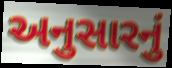
અનુસારનું